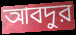
আবদুর